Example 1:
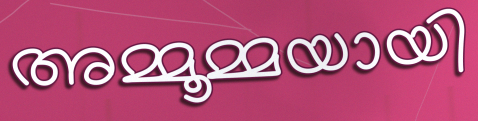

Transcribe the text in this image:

അമ്മൂമ്മയായി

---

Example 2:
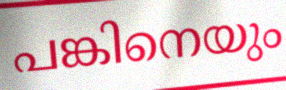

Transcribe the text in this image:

പങ്കിനെയും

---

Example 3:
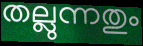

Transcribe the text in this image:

തല്ലുന്നതും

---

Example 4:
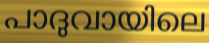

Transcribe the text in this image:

പാദുവായിലെ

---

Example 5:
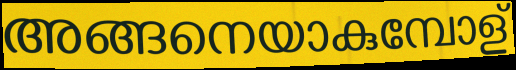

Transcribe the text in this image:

അങ്ങനെയാകുമ്പോള്